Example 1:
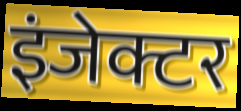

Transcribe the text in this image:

इंजेक्टर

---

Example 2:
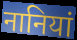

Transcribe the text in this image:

नानियां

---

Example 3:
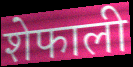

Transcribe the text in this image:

शेफाली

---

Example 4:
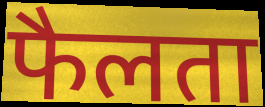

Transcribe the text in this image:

फैलता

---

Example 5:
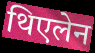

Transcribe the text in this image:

थिएलेन